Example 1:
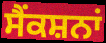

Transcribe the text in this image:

ਸੈਂਕਸ਼ਨਾਂ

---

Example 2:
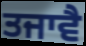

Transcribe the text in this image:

ਤਜਾਵੈ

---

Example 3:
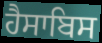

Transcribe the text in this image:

ਹੈਸਾਬਿਸ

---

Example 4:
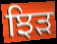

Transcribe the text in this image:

ਝਿੜ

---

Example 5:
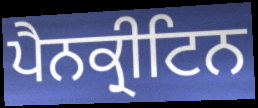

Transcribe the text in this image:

ਪੈਨਕ੍ਰੀਟਿਨ